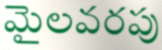
మైలవరపు